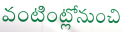
వంటింట్లోనుంచి